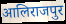
आलिराजपुर